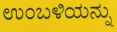
ಉಂಬಳಿಯನ್ನು